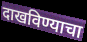
दाखविण्याचा